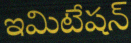
ఇమిటేషన్